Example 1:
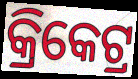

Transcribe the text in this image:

କ୍ରିକେଟ୍ର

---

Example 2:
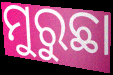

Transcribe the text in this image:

ମୁରୁଛା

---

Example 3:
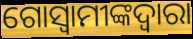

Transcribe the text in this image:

ଗୋସ୍ୱାମୀଙ୍କଦ୍ୱାରା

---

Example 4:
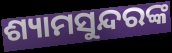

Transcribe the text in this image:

ଶ୍ୟାମସୁନ୍ଦରଙ୍କ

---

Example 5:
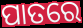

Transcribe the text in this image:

ପାତରେ